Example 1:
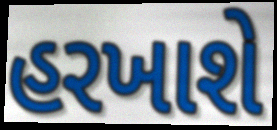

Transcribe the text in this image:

હરખાશે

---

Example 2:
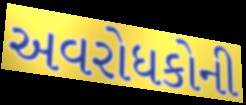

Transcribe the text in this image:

અવરોધકોની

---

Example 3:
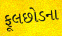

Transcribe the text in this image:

ફૂલછોડના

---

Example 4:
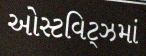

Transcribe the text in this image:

ઓસ્ટવિટ્ઝમાં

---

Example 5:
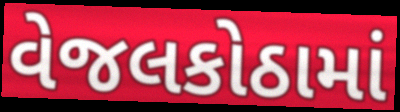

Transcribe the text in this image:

વેજલકોઠામાં